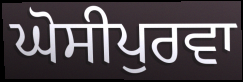
ਘੋਸੀਪੁਰਵਾ